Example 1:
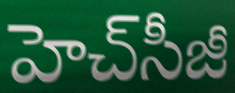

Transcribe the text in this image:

హెచ్‌సీజీ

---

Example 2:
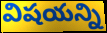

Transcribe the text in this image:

విషయన్ని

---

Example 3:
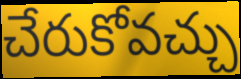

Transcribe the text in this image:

చేరుకోవచ్చు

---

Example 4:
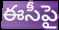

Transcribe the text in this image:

ఈసీపై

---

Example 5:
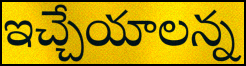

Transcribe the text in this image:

ఇచ్చేయాలన్న